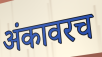
अंकावरच